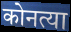
कोनत्या